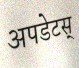
अपडेटस्